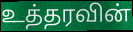
உத்தரவின்